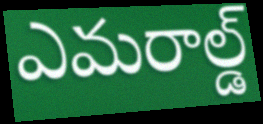
ఎమరాల్డ్